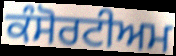
ਕੰਸੋਰਟੀਅਮ